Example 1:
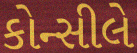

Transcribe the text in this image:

કોન્સીલે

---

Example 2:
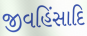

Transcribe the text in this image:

જીવહિંસાદિ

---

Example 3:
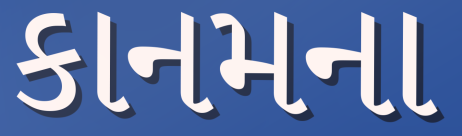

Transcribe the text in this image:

કાનમના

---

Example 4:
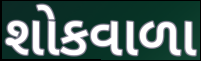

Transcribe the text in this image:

શોકવાળા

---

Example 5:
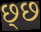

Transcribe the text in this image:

છ્છ